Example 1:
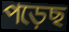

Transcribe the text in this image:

পড়েছ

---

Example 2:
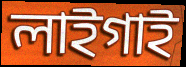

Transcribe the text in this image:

লাইগাই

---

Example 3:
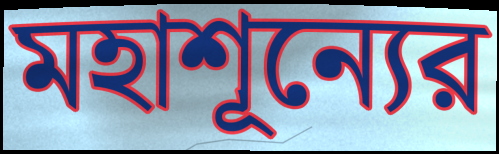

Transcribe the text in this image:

মহাশূন্যের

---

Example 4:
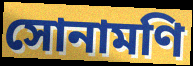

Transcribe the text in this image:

সোনামণি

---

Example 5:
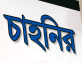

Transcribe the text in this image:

চাহনির